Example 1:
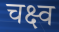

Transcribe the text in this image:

चक्ष्व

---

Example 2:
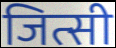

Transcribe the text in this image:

जित्सी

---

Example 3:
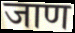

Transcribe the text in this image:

जाण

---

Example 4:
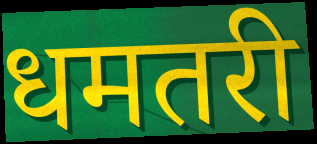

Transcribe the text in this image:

धमतरी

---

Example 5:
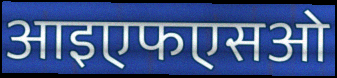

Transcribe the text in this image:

आइएफएसओ